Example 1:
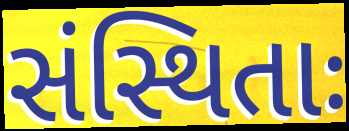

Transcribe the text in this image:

સંસ્થિતાઃ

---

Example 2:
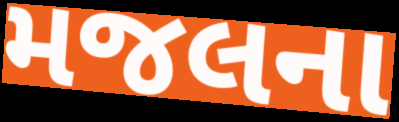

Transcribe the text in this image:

મજલના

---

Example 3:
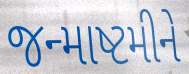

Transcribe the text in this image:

જન્માષ્ટમીને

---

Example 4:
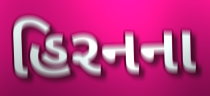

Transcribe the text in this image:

હિરનના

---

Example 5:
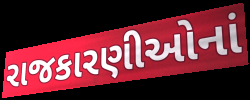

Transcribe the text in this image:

રાજકારણીઓનાં